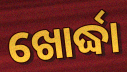
ଖୋର୍ଦ୍ଧା